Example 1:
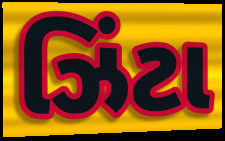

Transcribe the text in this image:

ઝિંટા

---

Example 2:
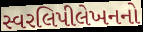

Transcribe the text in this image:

સ્વરલિપીલેખનનો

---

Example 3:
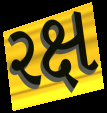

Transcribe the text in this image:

રક્ષ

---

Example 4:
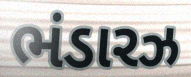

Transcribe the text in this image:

ભંડારઝ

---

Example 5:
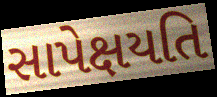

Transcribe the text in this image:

સાપેક્ષયતિ